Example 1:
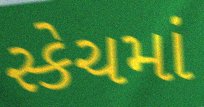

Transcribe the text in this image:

સ્કેચમાં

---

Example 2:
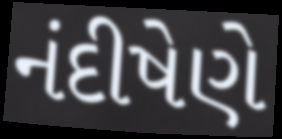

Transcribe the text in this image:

નંદીષેણે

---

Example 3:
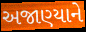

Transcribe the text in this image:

અજાણ્યાને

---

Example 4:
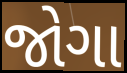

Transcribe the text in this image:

જોગા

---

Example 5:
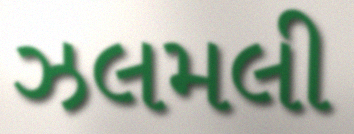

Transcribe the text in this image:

ઝલમલી